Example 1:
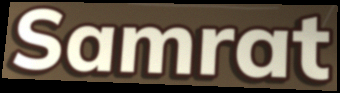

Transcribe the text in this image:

Samrat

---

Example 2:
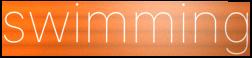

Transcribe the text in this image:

swimming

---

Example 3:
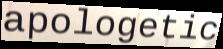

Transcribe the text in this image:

apologetic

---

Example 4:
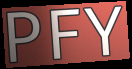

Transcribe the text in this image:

PFY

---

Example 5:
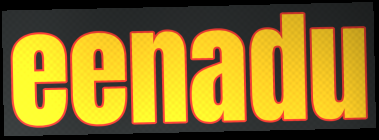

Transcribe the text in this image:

eenadu